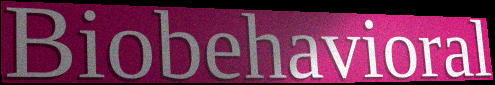
Biobehavioral